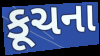
કૂચના